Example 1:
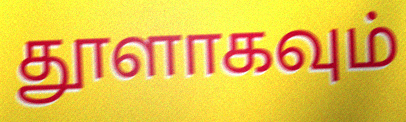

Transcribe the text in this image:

தூளாகவும்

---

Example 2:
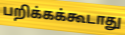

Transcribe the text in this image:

பறிக்கக்கூடாது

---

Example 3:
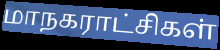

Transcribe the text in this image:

மாநகராட்சிகள்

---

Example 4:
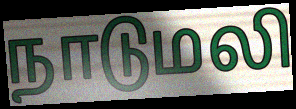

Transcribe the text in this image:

நாடுமலி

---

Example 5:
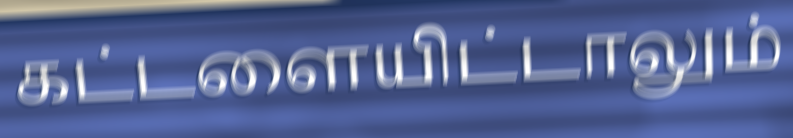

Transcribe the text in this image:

கட்டளையிட்டாலும்